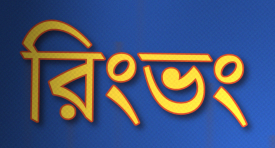
রিংভং